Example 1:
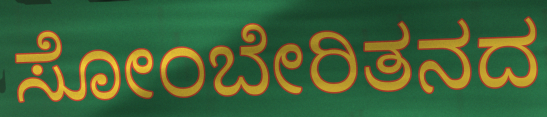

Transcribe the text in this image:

ಸೋಂಬೇರಿತನದ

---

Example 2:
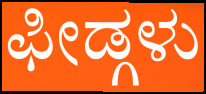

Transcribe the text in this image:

ಫೀಡ್ಗಳು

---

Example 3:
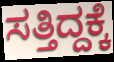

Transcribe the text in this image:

ಸತ್ತಿದ್ದಕ್ಕೆ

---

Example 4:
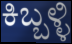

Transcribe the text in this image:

ಕಿಬ್ಬಳ್ಳಿ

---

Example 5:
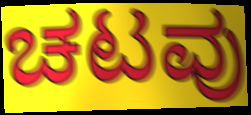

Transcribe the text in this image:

ಚಟವು